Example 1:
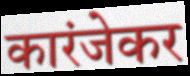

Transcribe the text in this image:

कारंजेकर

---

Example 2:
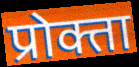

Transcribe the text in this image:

प्रोक्ता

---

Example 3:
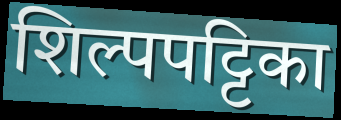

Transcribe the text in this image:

शिल्पपट्टिका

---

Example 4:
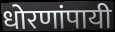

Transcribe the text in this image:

धोरणांपायी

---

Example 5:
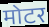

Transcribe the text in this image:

मोटर